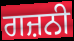
ਗਜ਼ਨੀ